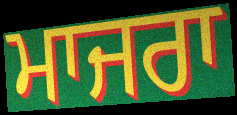
ਮਾਜਰਾ